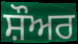
ਸ਼ੌਅਰ